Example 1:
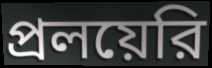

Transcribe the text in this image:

প্রলয়েরি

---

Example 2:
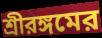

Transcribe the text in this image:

শ্রীরঙ্গমের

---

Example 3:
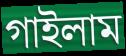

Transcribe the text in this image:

গাইলাম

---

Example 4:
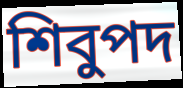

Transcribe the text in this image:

শিবুপদ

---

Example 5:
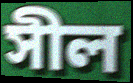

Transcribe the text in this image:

সীল